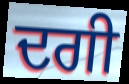
ਦਗੀ